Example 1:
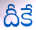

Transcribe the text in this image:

దీకే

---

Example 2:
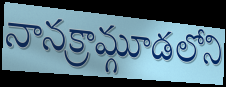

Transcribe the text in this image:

నానక్రామ్గూడలోని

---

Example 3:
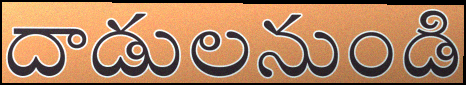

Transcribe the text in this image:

దాడులనుండి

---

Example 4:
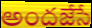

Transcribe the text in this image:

అందజేసే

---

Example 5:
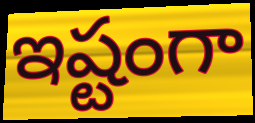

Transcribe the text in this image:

ఇష్టంగా